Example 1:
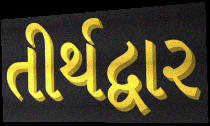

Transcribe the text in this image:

તીર્થદ્વાર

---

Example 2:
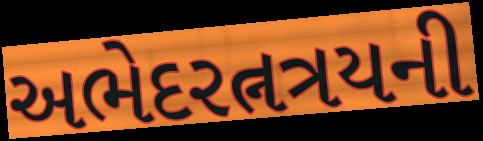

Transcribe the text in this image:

અભેદરત્નત્રયની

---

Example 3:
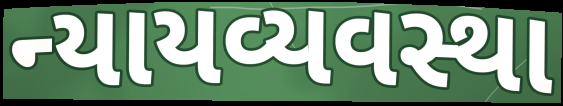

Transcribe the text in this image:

ન્યાયવ્યવસ્થા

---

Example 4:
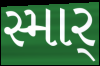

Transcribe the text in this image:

સ્માર્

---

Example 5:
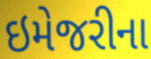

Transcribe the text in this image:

ઇમેજરીના